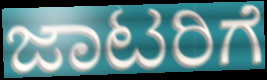
ಜಾಟರಿಗೆ